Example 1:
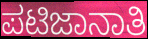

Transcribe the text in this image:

ಪಟಿಜಾನಾತಿ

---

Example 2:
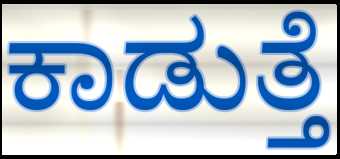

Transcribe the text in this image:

ಕಾಡುತ್ತೆ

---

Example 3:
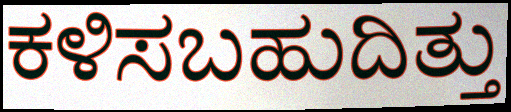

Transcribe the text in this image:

ಕಳಿಸಬಹುದಿತ್ತು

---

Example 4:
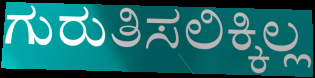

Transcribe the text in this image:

ಗುರುತಿಸಲಿಕ್ಕಿಲ್ಲ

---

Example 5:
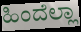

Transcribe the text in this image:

ಹಿಂದೆಲ್ಲಾ